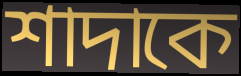
শাদাকে